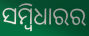
ସମ୍ବିଧାରର